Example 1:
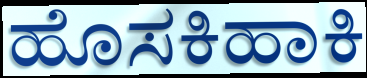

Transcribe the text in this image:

ಹೊಸಕಿಹಾಕಿ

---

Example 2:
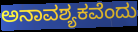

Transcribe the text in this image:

ಅನಾವಶ್ಯಕವೆಂದು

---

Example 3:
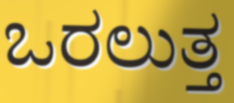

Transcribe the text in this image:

ಒರಲುತ್ತ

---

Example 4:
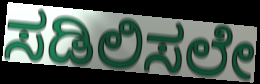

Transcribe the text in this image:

ಸಡಿಲಿಸಲೇ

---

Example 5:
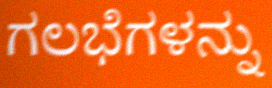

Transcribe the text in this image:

ಗಲಭೆಗಳನ್ನು